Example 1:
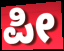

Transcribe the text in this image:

ಪೀ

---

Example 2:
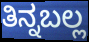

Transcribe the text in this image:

ತಿನ್ನಬಲ್ಲ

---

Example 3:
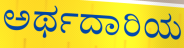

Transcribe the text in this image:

ಅರ್ಥದಾರಿಯ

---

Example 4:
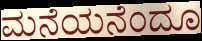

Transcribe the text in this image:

ಮನೆಯನೆಂದೂ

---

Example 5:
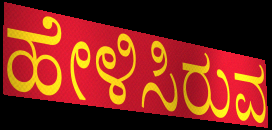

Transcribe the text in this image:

ಹೇಳಿಸಿರುವ